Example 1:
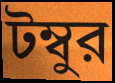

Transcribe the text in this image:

টম্বুর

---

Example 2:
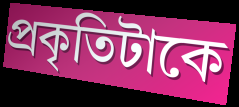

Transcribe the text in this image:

প্রকৃতিটাকে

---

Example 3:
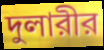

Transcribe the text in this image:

দুলারীর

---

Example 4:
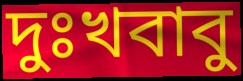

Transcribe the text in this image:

দুঃখবাবু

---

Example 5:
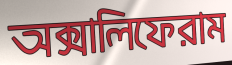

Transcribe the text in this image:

অক্সালিফেরাম